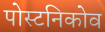
पोस्टनिकोव